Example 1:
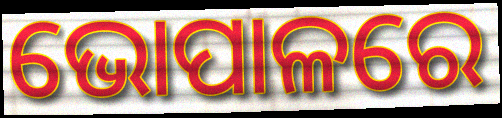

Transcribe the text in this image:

ଭୋପାଳରେ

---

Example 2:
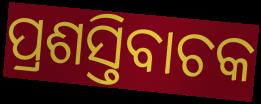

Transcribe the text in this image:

ପ୍ରଶସ୍ତିବାଚକ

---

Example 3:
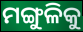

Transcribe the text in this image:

ମଙ୍ଗୁଳିକୁ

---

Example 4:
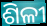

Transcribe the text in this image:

ଶିଳୀ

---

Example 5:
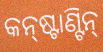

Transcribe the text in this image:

କନ୍‌ଷ୍ଟାଣ୍ଟିନ୍